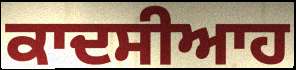
ਕਾਦਸੀਆਹ